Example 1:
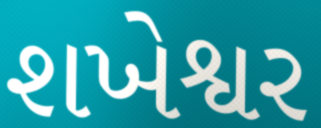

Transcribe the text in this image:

શખેશ્વર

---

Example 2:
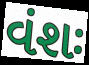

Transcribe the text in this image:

વંશઃ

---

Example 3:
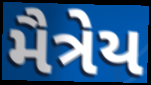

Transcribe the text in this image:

મૈત્રેય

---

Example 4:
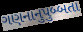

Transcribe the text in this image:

ગણનાનુપુબ્બતા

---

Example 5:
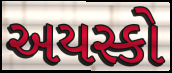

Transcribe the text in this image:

અયસ્કો